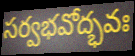
సర్వభవోద్భవః